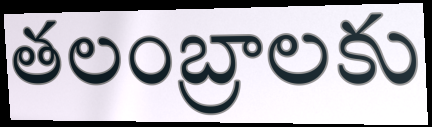
తలంబ్రాలకు